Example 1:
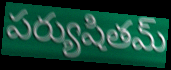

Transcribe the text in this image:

పర్యుషితమ్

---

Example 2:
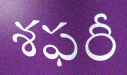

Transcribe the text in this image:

శఫరీ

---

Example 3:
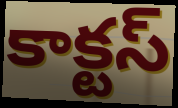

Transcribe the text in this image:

కాక్టస్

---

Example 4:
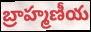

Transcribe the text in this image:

బ్రాహ్మణీయ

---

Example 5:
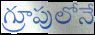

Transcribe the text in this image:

గ్రూపులోనే